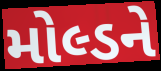
મોલ્ડને